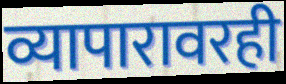
व्यापारावरही